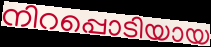
നിറപ്പൊടിയായ